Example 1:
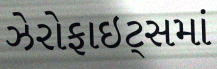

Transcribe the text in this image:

ઝેરોફાઇટ્સમાં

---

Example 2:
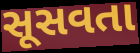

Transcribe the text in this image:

સૂસવતા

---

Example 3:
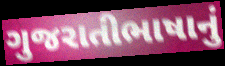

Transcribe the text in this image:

ગુજરાતીભાષાનું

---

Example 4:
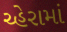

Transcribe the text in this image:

ચ્હેરામાં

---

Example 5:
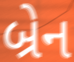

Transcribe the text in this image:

બ્રેન